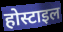
होस्टाइल